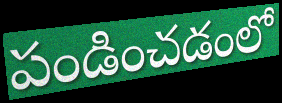
పండించడంలో